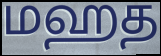
மஹத